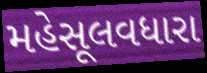
મહેસૂલવધારા